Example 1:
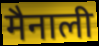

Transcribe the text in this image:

मैनाली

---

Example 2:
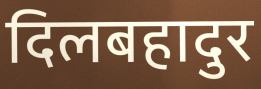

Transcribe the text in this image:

दिलबहादुर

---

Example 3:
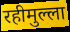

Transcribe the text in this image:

रहीमुल्ला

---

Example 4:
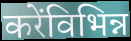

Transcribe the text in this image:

करेंविभिन्न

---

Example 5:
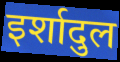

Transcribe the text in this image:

इर्शादुल